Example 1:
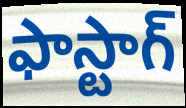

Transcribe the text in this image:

ఫాస్టాగ్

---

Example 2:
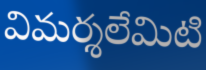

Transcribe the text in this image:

విమర్శలేమిటి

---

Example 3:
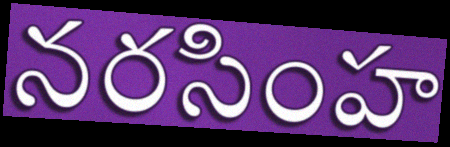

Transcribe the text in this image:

నరసింహ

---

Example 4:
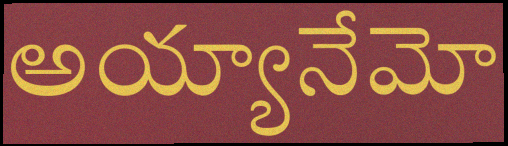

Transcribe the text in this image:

అయ్యానేమో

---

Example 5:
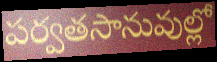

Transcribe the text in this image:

పర్వతసానువుల్లో